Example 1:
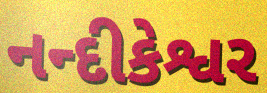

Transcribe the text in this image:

નન્દીકેશ્વર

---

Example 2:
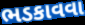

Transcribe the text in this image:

ભડકાવવા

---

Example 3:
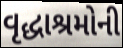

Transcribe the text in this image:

વૃદ્ધાશ્રમોની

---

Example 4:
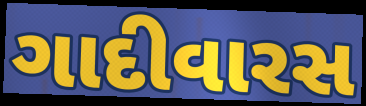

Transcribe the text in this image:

ગાદીવારસ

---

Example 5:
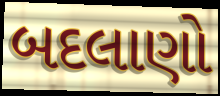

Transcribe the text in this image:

બદલાણો